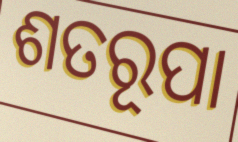
ଶତରୂପା